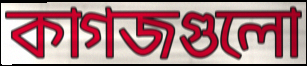
কাগজগুলো